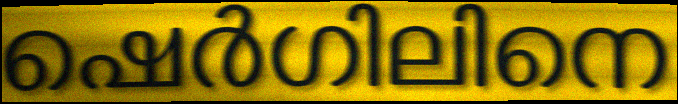
ഷെർഗിലിനെ